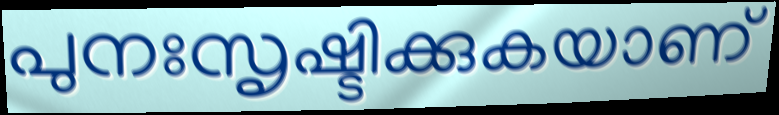
പുനഃസൃഷ്ടിക്കുകയാണ്